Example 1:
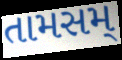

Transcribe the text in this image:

તામસમ્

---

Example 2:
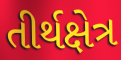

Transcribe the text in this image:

તીર્થક્ષેત્ર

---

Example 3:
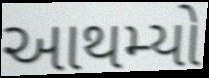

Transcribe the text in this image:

આથમ્યો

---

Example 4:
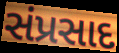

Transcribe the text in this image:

સંપ્રસાદ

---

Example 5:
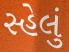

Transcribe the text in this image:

સ્હેલું